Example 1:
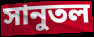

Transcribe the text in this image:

সানুতল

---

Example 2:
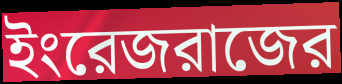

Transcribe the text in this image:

ইংরেজরাজের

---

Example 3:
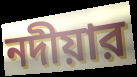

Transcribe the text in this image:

নদীয়ার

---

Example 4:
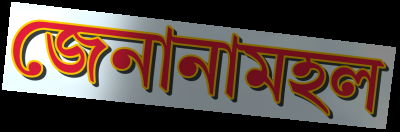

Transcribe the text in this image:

জেনানামহল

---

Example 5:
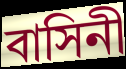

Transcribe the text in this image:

বাসিনী